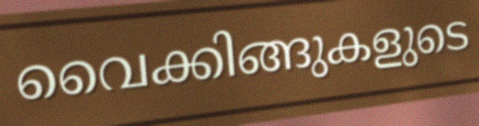
വൈക്കിങ്ങുകളുടെ